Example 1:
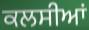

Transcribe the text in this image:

ਕਲਸੀਆਂ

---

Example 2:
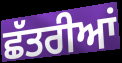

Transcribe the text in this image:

ਛੱਤਰੀਆਂ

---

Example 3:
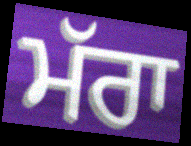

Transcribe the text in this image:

ਮੱਰਾ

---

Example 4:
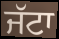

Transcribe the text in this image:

ਜੱਟਾ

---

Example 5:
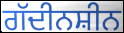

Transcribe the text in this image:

ਗੱਦੀਨਸ਼ੀਨ